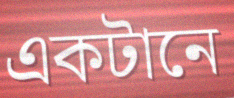
একটানে